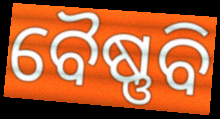
ବୈଷ୍ଣବି